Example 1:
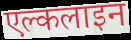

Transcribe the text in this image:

एल्कलाइन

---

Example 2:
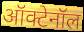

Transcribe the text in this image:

ऑक्टेनॉल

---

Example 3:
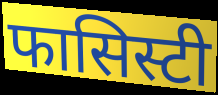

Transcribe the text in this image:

फासिस्टी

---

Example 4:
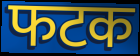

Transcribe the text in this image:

फटक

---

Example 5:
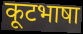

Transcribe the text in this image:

कूटभाषा